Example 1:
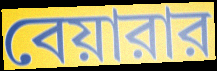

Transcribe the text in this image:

বেয়ারার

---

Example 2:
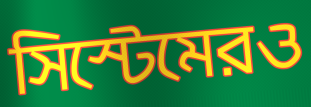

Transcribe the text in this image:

সিস্টেমেরও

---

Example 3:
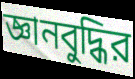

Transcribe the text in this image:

জ্ঞানবুদ্ধির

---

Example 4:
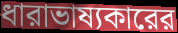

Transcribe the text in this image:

ধারাভাষ্যকারের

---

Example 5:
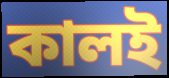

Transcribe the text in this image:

কালই